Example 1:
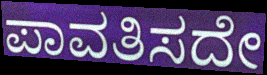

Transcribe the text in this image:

ಪಾವತಿಸದೇ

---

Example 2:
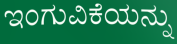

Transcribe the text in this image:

ಇಂಗುವಿಕೆಯನ್ನು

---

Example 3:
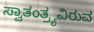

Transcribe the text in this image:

ಸ್ವಾತಂತ್ರ್ಯವಿರುವ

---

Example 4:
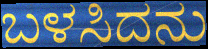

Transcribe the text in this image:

ಬಳಸಿದನು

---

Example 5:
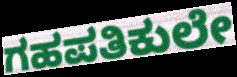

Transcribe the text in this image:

ಗಹಪತಿಕುಲೇ